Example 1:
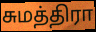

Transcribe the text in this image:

சுமத்திரா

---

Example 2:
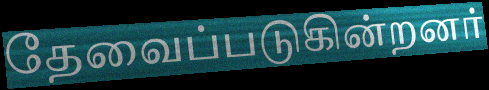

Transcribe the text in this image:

தேவைப்படுகின்றனர்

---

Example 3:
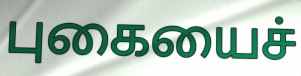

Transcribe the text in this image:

புகையைச்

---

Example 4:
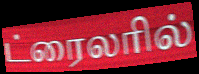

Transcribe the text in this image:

ட்ரைலரில்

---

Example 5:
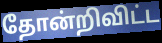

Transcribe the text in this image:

தோன்றிவிட்ட